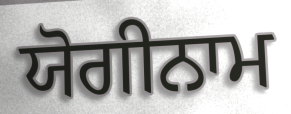
ਯੋਗੀਨਾਮ